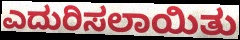
ಎದುರಿಸಲಾಯಿತು